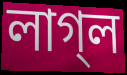
লাগ্‌ল